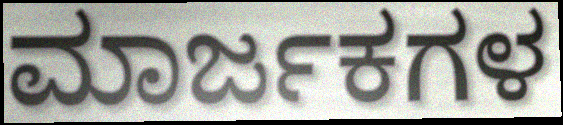
ಮಾರ್ಜಕಗಳ